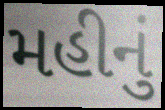
મહીનું